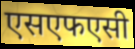
एसएफएसी